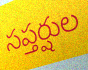
సప్తర్షుల